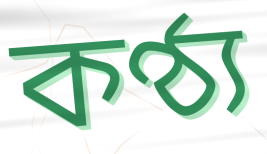
কণ্ঠ্য